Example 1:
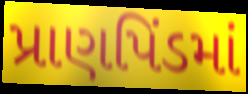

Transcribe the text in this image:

પ્રાણપિંડમાં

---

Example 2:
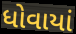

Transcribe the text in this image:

ધોવાયાં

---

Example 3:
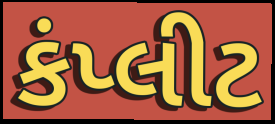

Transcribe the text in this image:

કંપ્લીટ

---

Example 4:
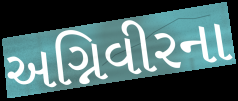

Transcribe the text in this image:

અગ્નિવીરના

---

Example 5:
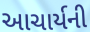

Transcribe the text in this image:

આચાર્યની